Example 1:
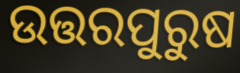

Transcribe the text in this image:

ଉତ୍ତରପୁରୁଷ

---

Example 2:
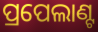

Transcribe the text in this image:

ପ୍ରପେଲାଣ୍ଟ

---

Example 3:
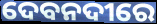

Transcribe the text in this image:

ଦେବନଦୀରେ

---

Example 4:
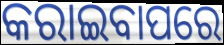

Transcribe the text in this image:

କରାଇବାପରେ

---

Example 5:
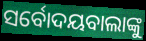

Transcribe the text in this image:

ସର୍ବୋଦୟବାଲାଙ୍କୁ